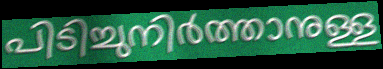
പിടിച്ചുനിർത്താനുള്ള